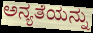
ಅನ್ಯತೆಯನ್ನು